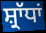
ਸ਼੍ਰਾੱਧਾਂ